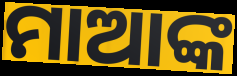
ମାଆଙ୍କ